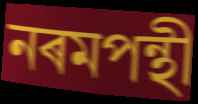
নৰমপন্থী